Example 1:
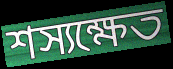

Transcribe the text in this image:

শস্যক্ষেত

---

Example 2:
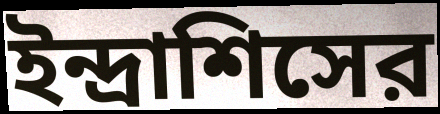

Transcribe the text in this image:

ইন্দ্রাশিসের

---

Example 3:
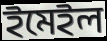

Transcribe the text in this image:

ইমেইল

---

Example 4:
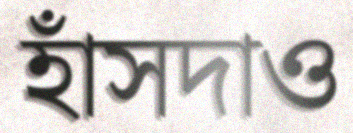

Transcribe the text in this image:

হাঁসদাও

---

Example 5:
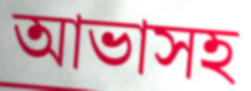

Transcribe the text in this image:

আভাসহ